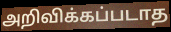
அறிவிக்கப்படாத